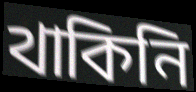
থাকিনি